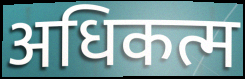
अधिकत्म